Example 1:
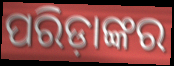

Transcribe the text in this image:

ପରିଡ଼ାଙ୍କର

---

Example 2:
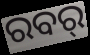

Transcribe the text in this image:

ରବର୍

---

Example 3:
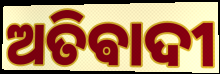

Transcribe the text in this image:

ଅତିଵାଦୀ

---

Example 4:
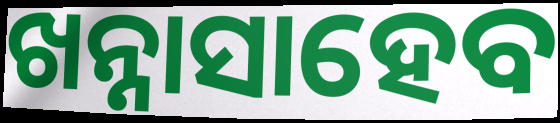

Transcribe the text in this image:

ଖନ୍ନାସାହେବ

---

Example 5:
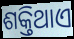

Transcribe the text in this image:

ଶକ୍ତିଥାଏ